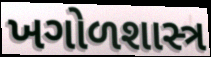
ખગોળશાસ્ત્ર